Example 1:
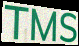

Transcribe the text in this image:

TMS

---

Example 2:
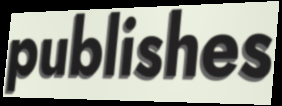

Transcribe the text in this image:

publishes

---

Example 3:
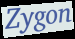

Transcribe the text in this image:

Zygon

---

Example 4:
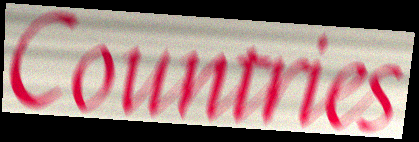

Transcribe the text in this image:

Countries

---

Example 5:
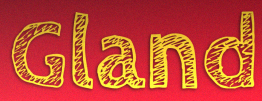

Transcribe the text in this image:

Gland